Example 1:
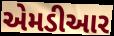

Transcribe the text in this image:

એમડીઆર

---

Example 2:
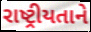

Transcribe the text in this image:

રાષ્ટ્રીયતાને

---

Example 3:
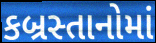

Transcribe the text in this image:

કબ્રસ્તાનોમાં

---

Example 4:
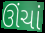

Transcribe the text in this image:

ઊંચાં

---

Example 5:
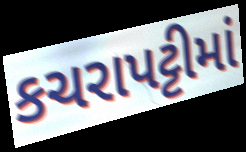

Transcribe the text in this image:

કચરાપટ્ટીમાં